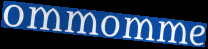
ommomme